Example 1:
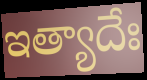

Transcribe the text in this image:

ఇత్యాదేః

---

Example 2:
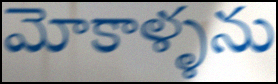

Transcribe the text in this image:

మోకాళ్ళను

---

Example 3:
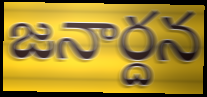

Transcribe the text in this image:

జనార్దన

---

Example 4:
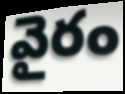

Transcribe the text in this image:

వైరం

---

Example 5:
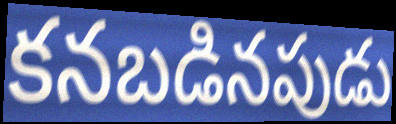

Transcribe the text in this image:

కనబడినపుడు